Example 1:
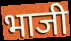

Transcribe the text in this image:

भाजी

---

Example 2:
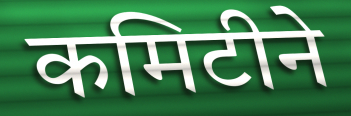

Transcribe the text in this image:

कमिटीने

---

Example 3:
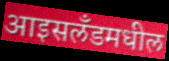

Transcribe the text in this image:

आइसलँडमधील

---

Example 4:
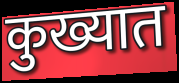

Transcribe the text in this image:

कुख्यात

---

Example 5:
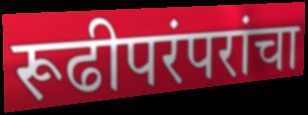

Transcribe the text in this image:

रूढीपरंपरांचा